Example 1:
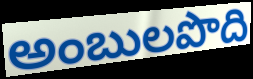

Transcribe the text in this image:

అంబులపొది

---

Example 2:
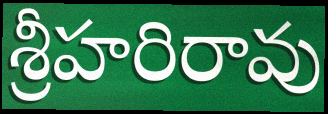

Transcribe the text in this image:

శ్రీహరిరావు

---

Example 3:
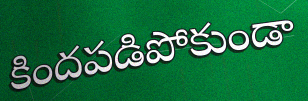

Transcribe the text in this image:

కిందపడిపోకుండా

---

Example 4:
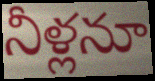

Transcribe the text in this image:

నీళ్లనూ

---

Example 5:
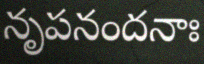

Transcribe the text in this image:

నృపనందనాః